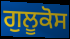
ਗੁਲੂਕੋਸ